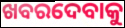
ଖବରଦେବାକୁ